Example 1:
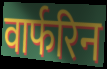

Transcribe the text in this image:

वार्फरिन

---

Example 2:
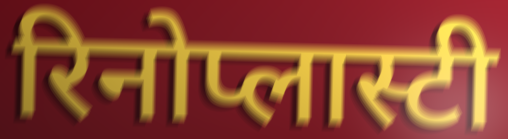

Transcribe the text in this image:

रिनोप्लास्टी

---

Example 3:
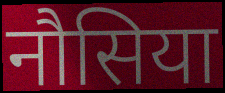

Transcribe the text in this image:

नौसिया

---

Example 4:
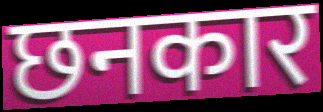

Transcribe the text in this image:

छनकार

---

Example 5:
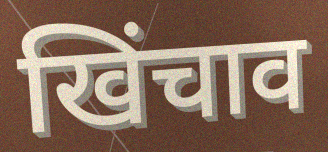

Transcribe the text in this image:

खिंचाव